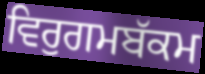
ਵਿਰੁਗਮਬੱਕਮ